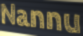
Nannu